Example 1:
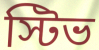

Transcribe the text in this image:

স্টিভ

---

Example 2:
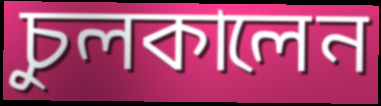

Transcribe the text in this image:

চুলকালেন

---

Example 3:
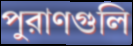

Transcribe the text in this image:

পুরাণগুলি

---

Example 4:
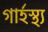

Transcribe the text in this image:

গার্হস্থ্য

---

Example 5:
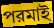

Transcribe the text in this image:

পরমাই